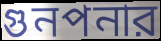
গুনপনার